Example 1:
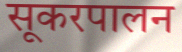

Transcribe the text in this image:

सूकरपालन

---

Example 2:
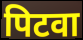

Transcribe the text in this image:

पिटवा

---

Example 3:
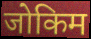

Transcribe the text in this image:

जोकिम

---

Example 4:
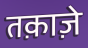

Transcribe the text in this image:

तक़ाज़े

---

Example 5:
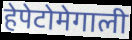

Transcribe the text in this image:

हेपेटोमेगाली